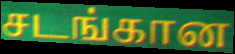
சடங்கான